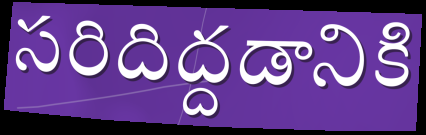
సరిదిద్దడానికి